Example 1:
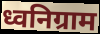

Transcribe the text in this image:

ध्वनिग्राम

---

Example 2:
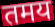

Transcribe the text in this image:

तमय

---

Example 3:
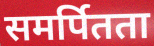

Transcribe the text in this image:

समर्पितता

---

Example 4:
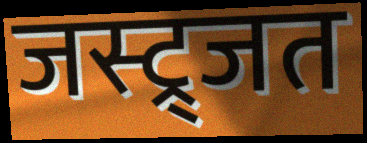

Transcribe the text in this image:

जस्ट्र्जत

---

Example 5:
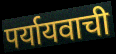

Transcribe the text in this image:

पर्यायवाची